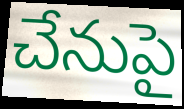
చేనుపై